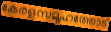
കേരളസമൂഹത്തോട്